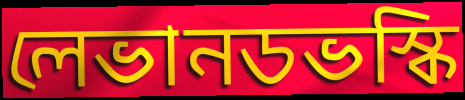
লেভানডভস্কি